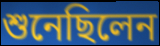
শুনেছিলেন